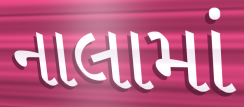
નાલામાં